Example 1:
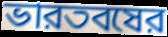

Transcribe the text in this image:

ভারতবষের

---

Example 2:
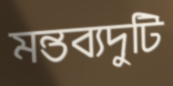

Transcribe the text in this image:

মন্তব্যদুটি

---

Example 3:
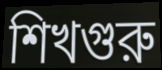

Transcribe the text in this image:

শিখগুরু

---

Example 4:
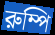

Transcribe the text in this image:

রুম্পি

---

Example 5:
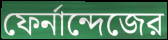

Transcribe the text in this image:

ফের্নান্দেজের